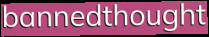
bannedthought